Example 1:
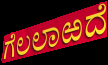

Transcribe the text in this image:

ಗೆಲಲಾಱದೆ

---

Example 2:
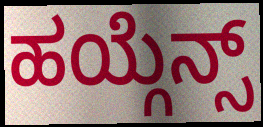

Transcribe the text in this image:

ಹಯ್ಗೆನ್ಸ್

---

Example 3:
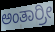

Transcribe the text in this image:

ಅಂತಾರ್ರೀ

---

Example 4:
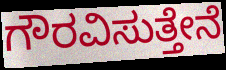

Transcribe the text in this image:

ಗೌರವಿಸುತ್ತೇನೆ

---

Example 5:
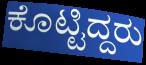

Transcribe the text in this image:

ಕೊಟ್ಟಿದ್ದರು